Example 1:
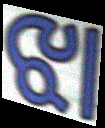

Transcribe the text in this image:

ଝା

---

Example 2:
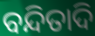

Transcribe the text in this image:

ବନ୍ଦିତାଦି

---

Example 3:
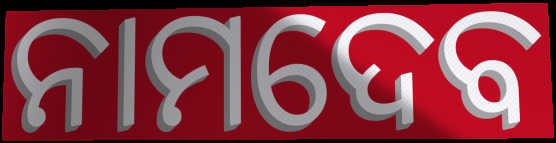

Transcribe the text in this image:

ନାମଦେବ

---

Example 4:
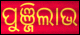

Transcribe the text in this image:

ପୁଞ୍ଜିଲାଭ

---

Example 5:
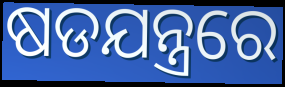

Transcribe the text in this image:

ଷଡଯନ୍ତ୍ରରେ